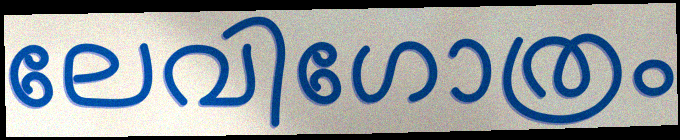
ലേവിഗോത്രം